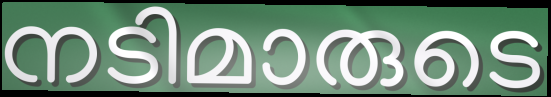
നടിമാരുടെ